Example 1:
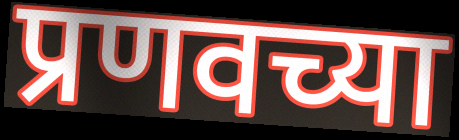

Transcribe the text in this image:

प्रणवच्या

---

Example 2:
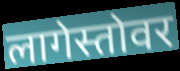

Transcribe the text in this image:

लागेस्तोवर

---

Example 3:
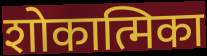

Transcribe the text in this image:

शोकात्मिका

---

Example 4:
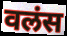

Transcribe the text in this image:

वलंस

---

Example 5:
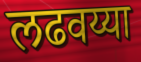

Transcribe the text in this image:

लढवय्या